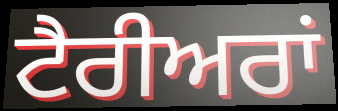
ਟੈਰੀਅਰਾਂ